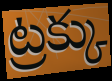
ట్రక్కు